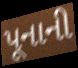
પૂનાની